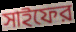
সাইফের